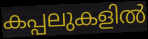
കപ്പലുകളിൽ